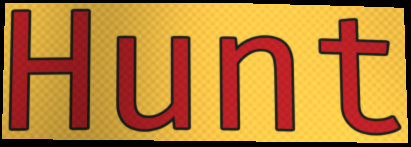
Hunt